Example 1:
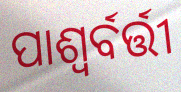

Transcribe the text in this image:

ପାଶ୍ୱର୍ବର୍ତ୍ତୀ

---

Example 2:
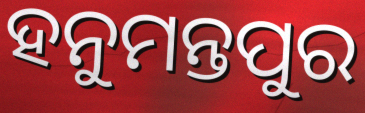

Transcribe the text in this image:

ହନୁମନ୍ତପୁର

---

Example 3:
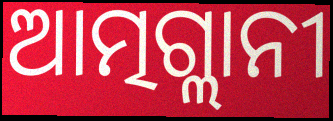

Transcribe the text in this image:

ଆତ୍ମଗ୍ଲାନୀ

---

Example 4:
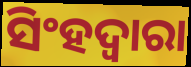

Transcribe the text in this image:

ସିଂହଦ୍ୱାରା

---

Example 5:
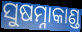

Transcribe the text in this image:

ସୁଷମ୍ନାକାଣ୍ଡ